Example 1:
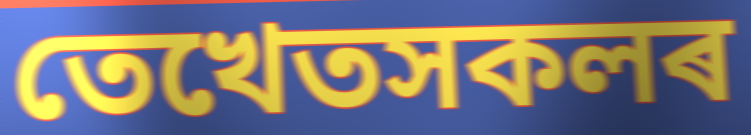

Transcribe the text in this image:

তেখেতসকলৰ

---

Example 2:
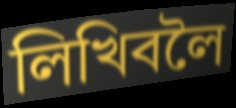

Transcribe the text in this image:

লিখিবলৈ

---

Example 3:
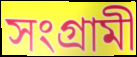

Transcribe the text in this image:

সংগ্ৰামী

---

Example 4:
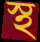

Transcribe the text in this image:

স্থ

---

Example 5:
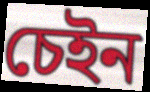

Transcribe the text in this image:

চেইন